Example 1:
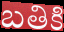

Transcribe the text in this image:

బతికి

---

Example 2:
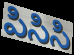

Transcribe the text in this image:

పిసిసి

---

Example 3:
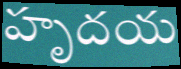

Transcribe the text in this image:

హృదయ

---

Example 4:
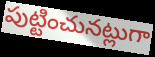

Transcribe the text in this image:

పుట్టించునట్లుగా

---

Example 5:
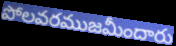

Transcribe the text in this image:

పోలవరముజమీందారు